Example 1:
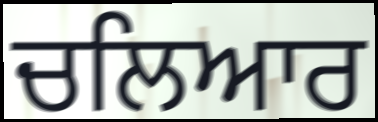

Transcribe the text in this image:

ਚਲਿਆਰ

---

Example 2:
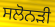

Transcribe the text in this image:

ਸਲੋਨੜੀ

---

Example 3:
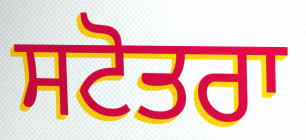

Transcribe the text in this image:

ਸਟੋਤਰਾ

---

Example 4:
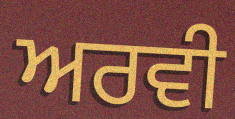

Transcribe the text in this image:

ਅਰਵੀ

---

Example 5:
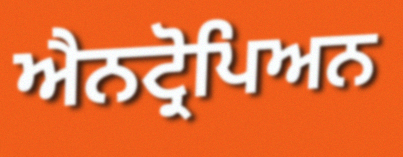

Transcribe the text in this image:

ਐਨਟ੍ਰੋਪਿਅਨ